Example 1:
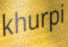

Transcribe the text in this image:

khurpi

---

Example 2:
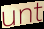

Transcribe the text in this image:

unt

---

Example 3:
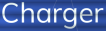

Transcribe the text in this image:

Charger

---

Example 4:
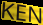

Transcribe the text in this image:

KEN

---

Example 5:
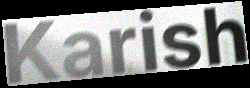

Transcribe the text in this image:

Karish